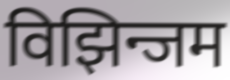
विझिन्जम